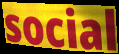
social